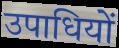
उपाधियों